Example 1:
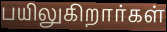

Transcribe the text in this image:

பயிலுகிறார்கள்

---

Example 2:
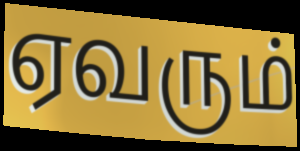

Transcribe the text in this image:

ஏவரும்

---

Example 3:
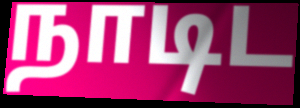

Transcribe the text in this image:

நாடிட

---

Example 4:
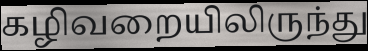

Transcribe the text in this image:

கழிவறையிலிருந்து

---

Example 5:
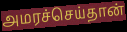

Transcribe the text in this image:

அமரச்செய்தான்